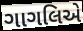
ગાગલિએ